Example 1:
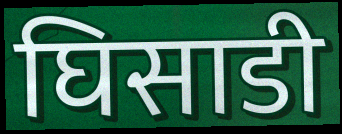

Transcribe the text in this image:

घिसाडी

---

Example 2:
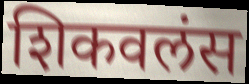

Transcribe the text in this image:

शिकवलंस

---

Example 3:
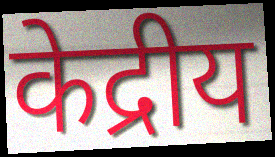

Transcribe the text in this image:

केद्रीय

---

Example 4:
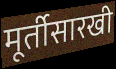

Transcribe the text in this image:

मूर्तीसारखी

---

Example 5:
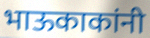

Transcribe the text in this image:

भाऊकाकांनी